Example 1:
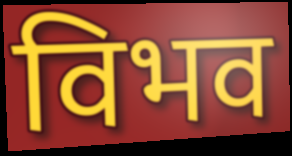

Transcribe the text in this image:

विभव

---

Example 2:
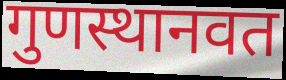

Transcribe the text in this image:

गुणस्थानवत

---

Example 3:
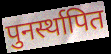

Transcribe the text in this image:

पुनर्स्थापित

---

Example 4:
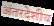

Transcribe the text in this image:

अंतरदेशीय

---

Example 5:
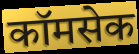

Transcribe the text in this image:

कॉमसेक